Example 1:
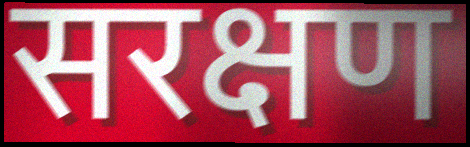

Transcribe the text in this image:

सरक्षण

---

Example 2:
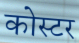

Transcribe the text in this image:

कोस्टर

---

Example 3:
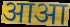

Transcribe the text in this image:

आआ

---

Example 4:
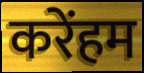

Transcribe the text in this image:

करेंहम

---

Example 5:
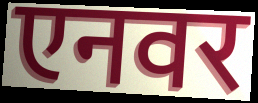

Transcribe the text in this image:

एनवर